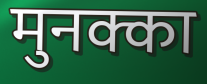
मुनक्का